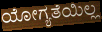
ಯೋಗ್ಯತೆಯಿಲ್ಲ